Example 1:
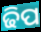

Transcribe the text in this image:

ଢିପ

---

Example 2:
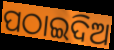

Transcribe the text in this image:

ପଠାଇଦିଅ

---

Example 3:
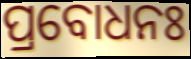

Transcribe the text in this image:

ପ୍ରବୋଧନଃ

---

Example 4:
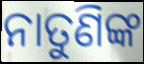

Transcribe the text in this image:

ନାତୁଣିଙ୍କ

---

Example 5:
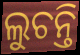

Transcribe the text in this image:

ଲୁଚନ୍ତି